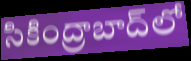
సికింద్రాబాద్‌లో